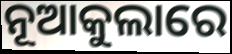
ନୂଆକୁଲାରେ